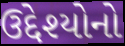
ઉદ્દેશ્યોનો